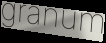
granum